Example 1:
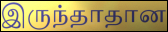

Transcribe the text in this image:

இருந்தாதான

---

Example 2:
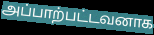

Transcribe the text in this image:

அப்பாற்பட்டவனாக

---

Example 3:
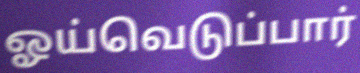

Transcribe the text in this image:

ஓய்வெடுப்பார்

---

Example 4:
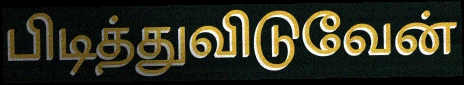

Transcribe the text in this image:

பிடித்துவிடுவேன்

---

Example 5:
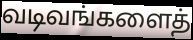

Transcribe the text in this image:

வடிவங்களைத்